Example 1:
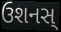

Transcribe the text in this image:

ઉશનસ્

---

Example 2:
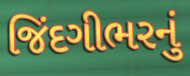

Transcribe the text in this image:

જિંદગીભરનું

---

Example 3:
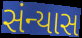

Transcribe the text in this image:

સંન્યાસ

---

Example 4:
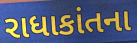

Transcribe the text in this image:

રાધાકાંતના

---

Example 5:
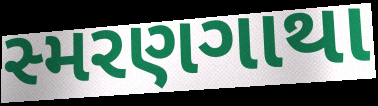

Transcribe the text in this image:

સ્મરણગાથા